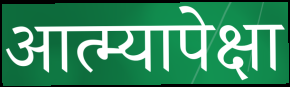
आत्म्यापेक्षा